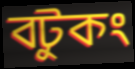
বটুকং